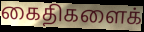
கைதிகளைக்